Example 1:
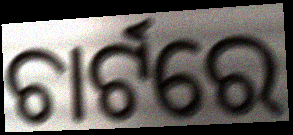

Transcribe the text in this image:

ଚାର୍ଟରେ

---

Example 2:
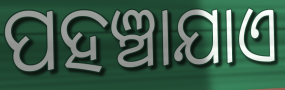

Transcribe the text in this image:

ପହଞ୍ଚାଯାଏ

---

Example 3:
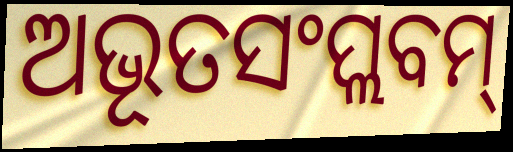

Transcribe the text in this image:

ଅଭୂତସଂପ୍ଲବମ୍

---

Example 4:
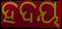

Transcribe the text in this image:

ହଦୟ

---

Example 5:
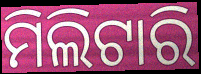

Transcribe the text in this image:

ମିଲିଟାରି